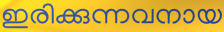
ഇരിക്കുന്നവനായ